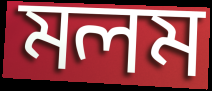
মলম